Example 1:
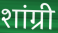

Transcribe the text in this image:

शांग्री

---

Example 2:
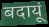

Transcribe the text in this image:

बदायूं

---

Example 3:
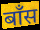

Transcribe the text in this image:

बाँस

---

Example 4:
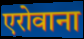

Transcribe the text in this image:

एरोवाना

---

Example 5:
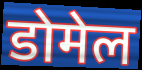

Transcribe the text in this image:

डोमेल